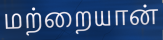
மற்றையான்